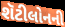
શૅટીલોનની